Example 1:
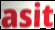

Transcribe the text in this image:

asit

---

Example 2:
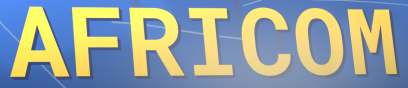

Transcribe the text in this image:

AFRICOM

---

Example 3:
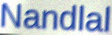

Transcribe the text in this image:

Nandlal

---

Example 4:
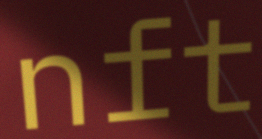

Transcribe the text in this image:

nft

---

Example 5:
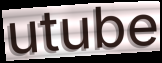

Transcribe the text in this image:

utube